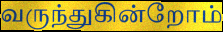
வருந்துகின்றோம்